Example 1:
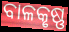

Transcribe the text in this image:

ବାଳକୃଷ୍ଣ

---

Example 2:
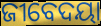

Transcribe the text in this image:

ଜୀବେଦୟା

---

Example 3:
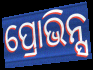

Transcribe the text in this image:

ପ୍ରୋଭିନ୍ସ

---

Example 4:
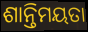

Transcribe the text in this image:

ଶାନ୍ତିମୟତା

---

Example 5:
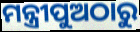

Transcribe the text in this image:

ମନ୍ତ୍ରୀପୁଅଠାରୁ